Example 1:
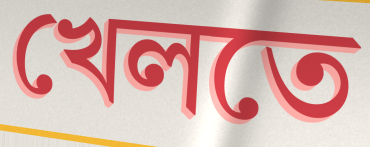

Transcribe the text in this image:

খেলতে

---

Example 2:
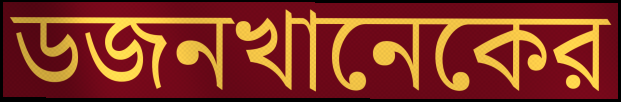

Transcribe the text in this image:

ডজনখানেকের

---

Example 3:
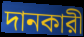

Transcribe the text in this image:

দানকারী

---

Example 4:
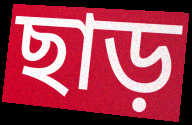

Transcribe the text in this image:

ছাড়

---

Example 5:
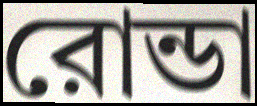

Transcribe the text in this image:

রোন্ডা